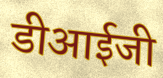
डीआईजी